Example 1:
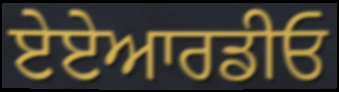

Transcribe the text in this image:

ਏਏਆਰਡੀਓ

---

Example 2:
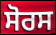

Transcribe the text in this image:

ਸੋਰਸ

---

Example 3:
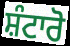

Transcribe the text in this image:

ਸ਼ੰਟਾਰੋ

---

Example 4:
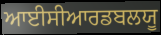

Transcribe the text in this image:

ਆਈਸੀਆਰਡਬਲਯੂ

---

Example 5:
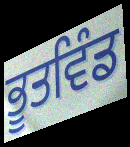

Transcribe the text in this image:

ਭੂਤਵਿੰਡ